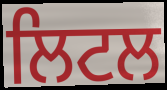
ਲਿਟਲ